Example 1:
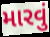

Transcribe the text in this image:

મારવું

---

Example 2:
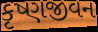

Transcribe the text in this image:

કૃષ્ણજીવન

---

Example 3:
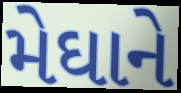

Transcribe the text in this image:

મેઘાને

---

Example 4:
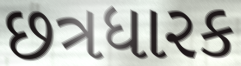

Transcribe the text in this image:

છત્રધારક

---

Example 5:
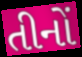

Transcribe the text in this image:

તીનોં